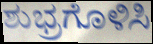
ಶುಭ್ರಗೊಳಿಸಿ